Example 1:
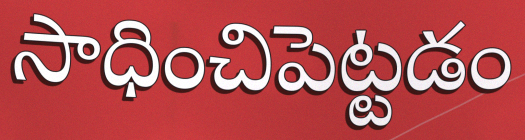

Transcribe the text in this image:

సాధించిపెట్టడం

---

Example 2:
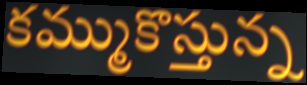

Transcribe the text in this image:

కమ్ముకొస్తున్న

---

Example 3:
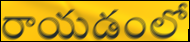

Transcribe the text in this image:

రాయడంలో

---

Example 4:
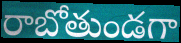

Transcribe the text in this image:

రాబోతుండగా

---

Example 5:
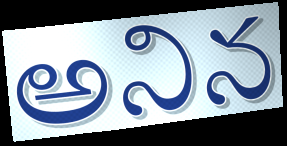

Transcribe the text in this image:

అనిన